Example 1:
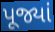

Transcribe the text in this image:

પૂજ્યાં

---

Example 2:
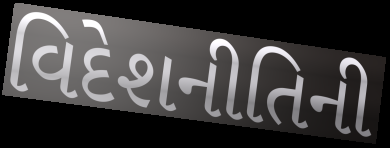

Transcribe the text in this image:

વિદેશનીતિની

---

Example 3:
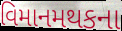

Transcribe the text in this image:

વિમાનમથકના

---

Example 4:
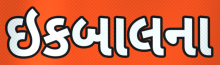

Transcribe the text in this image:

ઇકબાલના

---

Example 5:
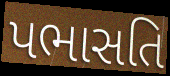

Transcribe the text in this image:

પભાસતિ